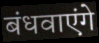
बंधवाएंगे